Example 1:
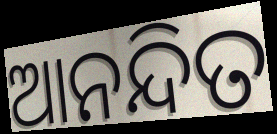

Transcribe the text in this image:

ଆନନ୍ଦିତ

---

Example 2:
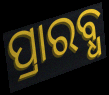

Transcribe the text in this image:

ପ୍ରାରବ୍ଧ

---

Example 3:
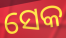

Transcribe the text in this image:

ସେକ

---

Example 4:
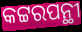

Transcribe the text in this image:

କଟ୍ଟରପନ୍ଥୀ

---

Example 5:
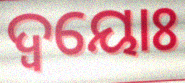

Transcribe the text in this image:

ଦ୍ବୟୋଃ